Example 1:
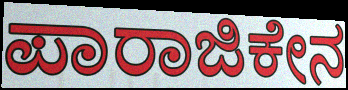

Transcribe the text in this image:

ಪಾರಾಜಿಕೇನ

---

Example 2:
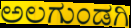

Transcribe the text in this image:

ಅಲಗುಂಡಗಿ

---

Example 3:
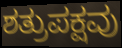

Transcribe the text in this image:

ಶತ್ರುಪಕ್ಷವು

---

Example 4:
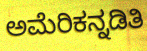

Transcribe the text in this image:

ಅಮೆರಿಕನ್ನಡಿತಿ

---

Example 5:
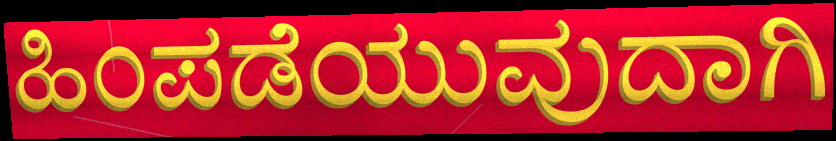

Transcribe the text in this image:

ಹಿಂಪಡೆಯುವುದಾಗಿ